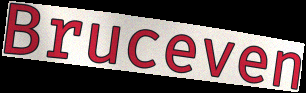
Bruceven